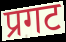
प्रगट